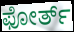
ಫೋರ್ತ್